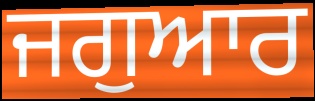
ਜਗੁਆਰ